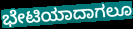
ಭೇಟಿಯಾದಾಗಲೂ